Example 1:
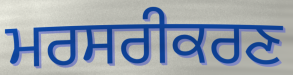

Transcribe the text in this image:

ਮਰਸਰੀਕਰਣ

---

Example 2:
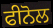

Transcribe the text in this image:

ਫੀਨੋਲ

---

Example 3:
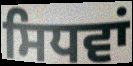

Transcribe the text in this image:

ਸਿਧਵਾਂ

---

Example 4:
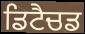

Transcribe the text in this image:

ਡਿਟੈਚਡ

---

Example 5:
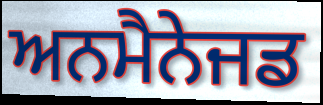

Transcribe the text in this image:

ਅਨਮੈਨੇਜਡ